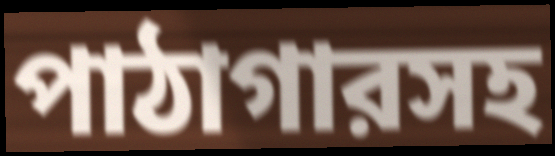
পাঠাগারসহ